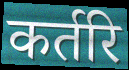
कर्तरि